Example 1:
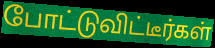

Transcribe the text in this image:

போட்டுவிட்டீர்கள்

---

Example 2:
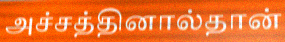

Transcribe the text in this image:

அச்சத்தினால்தான்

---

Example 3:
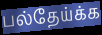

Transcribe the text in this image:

பல்தேய்க்க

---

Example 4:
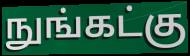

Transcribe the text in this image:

நுங்கட்கு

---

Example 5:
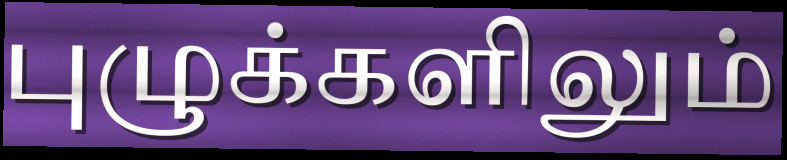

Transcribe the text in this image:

புழுக்களிலும்